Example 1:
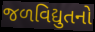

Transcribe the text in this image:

જળવિદ્યુતનો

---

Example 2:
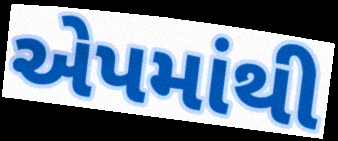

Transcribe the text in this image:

એપમાંથી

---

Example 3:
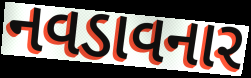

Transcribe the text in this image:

નવડાવનાર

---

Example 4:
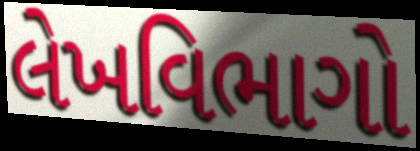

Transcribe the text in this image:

લેખવિભાગો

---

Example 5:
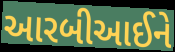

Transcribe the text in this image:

આરબીઆઈને